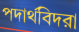
পদার্থবিদরা